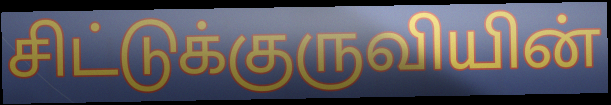
சிட்டுக்குருவியின்